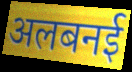
अलबनई